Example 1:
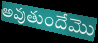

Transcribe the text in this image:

అవుతుందేమొ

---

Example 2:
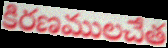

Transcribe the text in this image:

కిరణములచేత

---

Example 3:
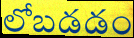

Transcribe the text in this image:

లోబడడం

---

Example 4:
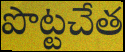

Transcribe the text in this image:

పొట్టచేత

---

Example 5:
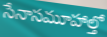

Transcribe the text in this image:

సేనాసమూహాల్తో